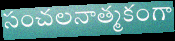
సంచలనాత్మకంగా